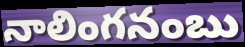
నాలింగనంబు